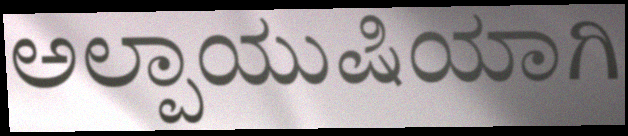
ಅಲ್ಪಾಯುಷಿಯಾಗಿ